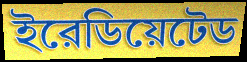
ইরেডিয়েটেড